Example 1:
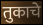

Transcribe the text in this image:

तुकाचे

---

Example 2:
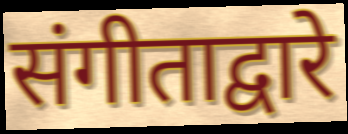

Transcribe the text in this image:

संगीताद्वारे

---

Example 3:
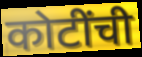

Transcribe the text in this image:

कोटींची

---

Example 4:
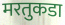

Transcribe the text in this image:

मरतुकडा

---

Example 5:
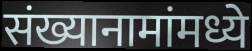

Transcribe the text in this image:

संख्यानामांमध्ये